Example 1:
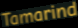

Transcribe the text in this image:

Tamarind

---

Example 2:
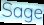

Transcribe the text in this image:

Sage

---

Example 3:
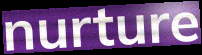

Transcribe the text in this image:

nurture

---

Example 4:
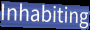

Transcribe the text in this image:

Inhabiting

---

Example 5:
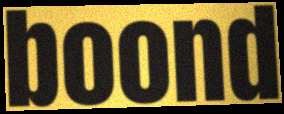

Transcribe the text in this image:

boond